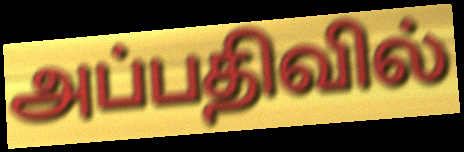
அப்பதிவில்